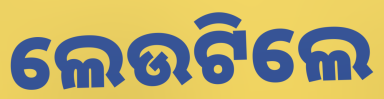
ଲେଉଟିଲେ